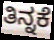
ತಿನ್ನಕೆ